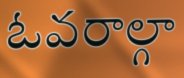
ఓవరాల్గా